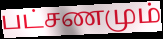
பட்சணமும்